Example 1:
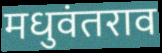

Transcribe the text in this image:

मधुवंतराव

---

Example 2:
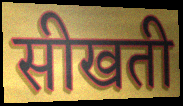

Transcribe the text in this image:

सीखती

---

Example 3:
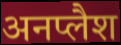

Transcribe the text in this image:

अनप्लैश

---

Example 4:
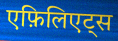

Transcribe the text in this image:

एफ़िलिएट्स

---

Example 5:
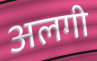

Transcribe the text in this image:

अलगी